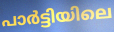
പാർട്ടിയിലെ